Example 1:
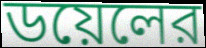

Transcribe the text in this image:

ডয়েলের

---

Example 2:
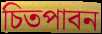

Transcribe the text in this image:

চিতপাবন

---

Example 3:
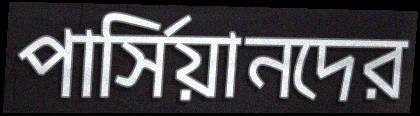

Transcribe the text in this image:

পার্সিয়ানদের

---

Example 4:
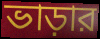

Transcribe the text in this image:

ভাড়ার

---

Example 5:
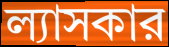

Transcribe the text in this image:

ল্যাসকার